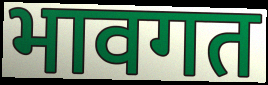
भावगत